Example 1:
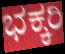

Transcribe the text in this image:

ಭಕ್ಕರಿ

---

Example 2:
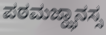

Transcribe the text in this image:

ಪಠಮಜ್ಝಾನಸ್ಸ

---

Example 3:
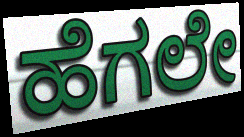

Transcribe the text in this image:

ಹೆಗಲೇ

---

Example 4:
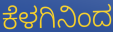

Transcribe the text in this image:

ಕೆಳಗಿನಿಂದ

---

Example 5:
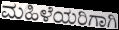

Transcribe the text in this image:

ಮಹಿಳೆಯರಿಗಾಗಿ